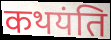
कथयंति